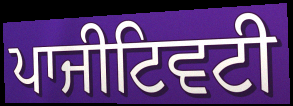
ਪਾਜੀਟਿਵਟੀ